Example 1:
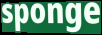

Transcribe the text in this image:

sponge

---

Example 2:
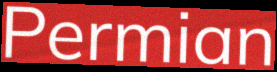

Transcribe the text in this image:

Permian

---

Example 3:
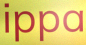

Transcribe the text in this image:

ippa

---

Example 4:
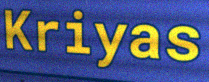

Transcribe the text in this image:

Kriyas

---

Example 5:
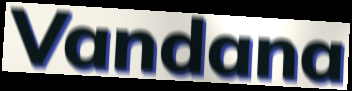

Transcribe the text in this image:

Vandana